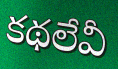
కథలేవీ